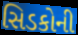
સિડકોની